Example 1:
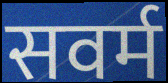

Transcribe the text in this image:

सवर्म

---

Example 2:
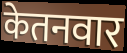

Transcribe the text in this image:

केतनवार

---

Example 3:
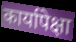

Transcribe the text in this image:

कार्यापेक्षा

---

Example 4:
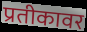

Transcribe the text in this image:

प्रतीकावर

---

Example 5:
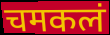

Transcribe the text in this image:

चमकलं